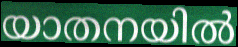
യാതനയിൽ